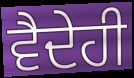
ਵੈਦੇਹੀ